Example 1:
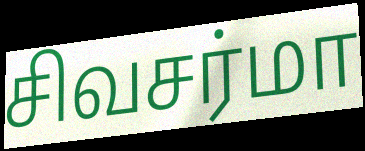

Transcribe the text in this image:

சிவசர்மா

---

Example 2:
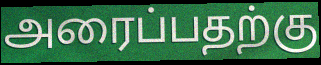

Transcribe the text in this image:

அரைப்பதற்கு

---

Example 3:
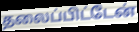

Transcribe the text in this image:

தலைப்பிட்டேன்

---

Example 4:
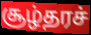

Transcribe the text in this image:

சூழ்தரச்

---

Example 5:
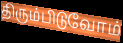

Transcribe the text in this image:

திரும்பிடுவோம்